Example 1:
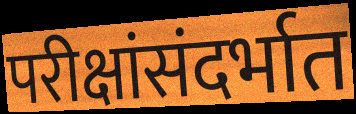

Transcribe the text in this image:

परीक्षांसंदर्भात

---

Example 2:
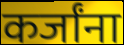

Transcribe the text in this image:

कर्जांना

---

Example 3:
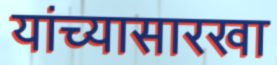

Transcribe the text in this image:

यांच्यासारखा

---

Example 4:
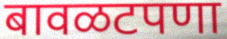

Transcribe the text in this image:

बावळटपणा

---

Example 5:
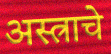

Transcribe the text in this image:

अस्त्राचे